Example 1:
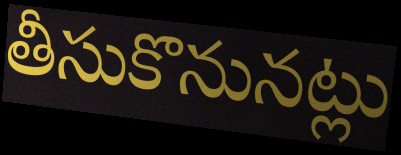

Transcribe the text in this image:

తీసుకొనునట్లు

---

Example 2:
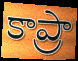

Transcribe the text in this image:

కాప్రా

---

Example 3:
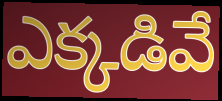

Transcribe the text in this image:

ఎక్కడివే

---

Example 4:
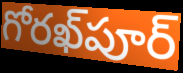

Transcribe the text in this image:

గోరఖ్‌పూర్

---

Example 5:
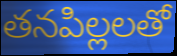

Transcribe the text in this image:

తనపిల్లలతో